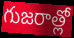
గుజరాత్లో